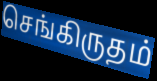
செங்கிருதம்